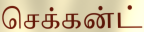
செக்கன்ட்